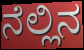
ನೆಲ್ಲಿನ